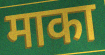
माका